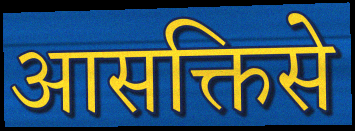
आसक्तिसे